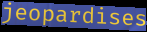
jeopardises